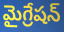
మైగ్రేషన్